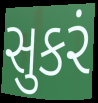
સુકરં